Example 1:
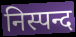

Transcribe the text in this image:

निस्पन्द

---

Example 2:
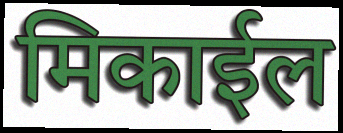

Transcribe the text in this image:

मिकाईल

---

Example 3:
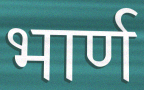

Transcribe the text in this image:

भार्ण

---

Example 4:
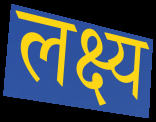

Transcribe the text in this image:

लक्ष्य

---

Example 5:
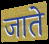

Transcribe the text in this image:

जाते